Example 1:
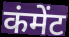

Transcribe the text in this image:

कंमेंट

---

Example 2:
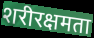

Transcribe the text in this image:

शरीरक्षमता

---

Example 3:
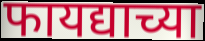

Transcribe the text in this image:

फायद्याच्या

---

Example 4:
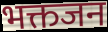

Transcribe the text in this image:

भक्तजन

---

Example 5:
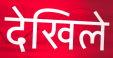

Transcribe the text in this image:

देखिले